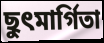
ছুৎমার্গিতা